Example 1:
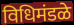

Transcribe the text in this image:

विधिमंडळे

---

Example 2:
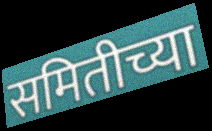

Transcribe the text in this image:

समितीच्या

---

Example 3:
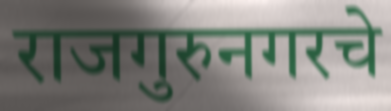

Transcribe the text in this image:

राजगुरुनगरचे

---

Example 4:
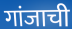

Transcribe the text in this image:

गांजाची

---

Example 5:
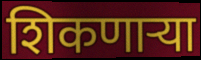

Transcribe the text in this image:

शिकणाऱ्या